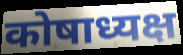
कोषाध्यक्ष